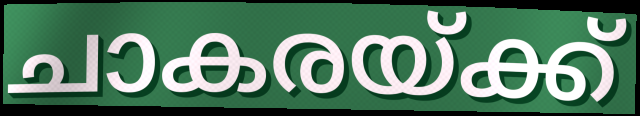
ചാകരയ്ക്ക്